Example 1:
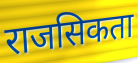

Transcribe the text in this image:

राजसिकता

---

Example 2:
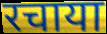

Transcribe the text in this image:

रचाया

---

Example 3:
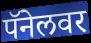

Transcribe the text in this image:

पॅनेलवर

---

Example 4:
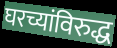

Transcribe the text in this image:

घरच्यांविरुद्ध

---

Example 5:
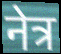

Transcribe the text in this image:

नेत्र